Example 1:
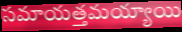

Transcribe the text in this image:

సమాయత్తమయ్యాయి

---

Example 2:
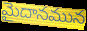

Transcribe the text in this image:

మైదానమున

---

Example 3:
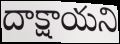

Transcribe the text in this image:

దాక్షాయని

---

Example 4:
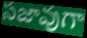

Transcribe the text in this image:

సజావుగా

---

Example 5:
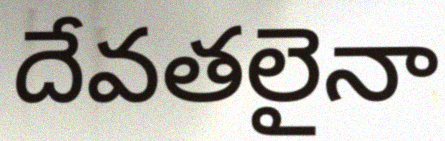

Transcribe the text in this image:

దేవతలైనా